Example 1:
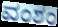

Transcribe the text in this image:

ವಂಶಂ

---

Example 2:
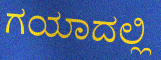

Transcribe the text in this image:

ಗಯಾದಲ್ಲಿ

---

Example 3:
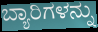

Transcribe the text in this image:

ಬ್ಯಾರಿಗಳನ್ನು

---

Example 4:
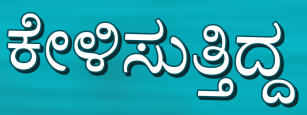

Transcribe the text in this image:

ಕೇಳಿಸುತ್ತಿದ್ದ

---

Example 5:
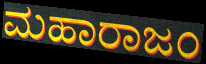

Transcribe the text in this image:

ಮಹಾರಾಜಂ